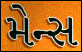
મેન્સ